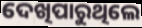
ଦେଖିପାରୁଥିଲେ